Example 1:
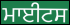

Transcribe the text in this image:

ਮਾਈਟਸ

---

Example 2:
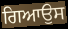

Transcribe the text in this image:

ਗਿਆਉਸ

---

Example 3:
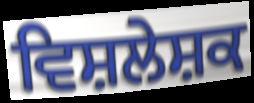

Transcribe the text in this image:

ਵਿਸ਼ਲੇਸ਼ਕ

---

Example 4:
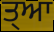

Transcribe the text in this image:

ਤ੍ਆ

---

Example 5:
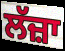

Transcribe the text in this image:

ਲੱਜ਼ਾ